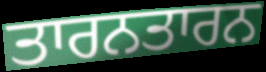
ਤਾਰਨਤਾਰਨ